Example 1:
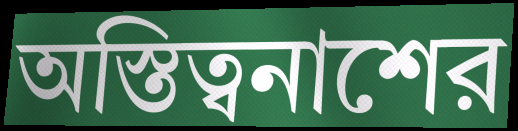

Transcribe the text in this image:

অস্তিত্বনাশের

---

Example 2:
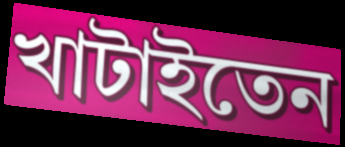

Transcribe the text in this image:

খাটাইতেন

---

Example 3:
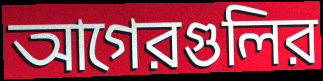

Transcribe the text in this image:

আগেরগুলির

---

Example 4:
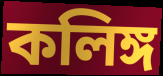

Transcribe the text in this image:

কলিঙ্গ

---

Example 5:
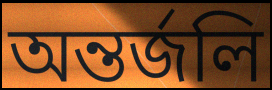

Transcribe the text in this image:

অন্তর্জলি